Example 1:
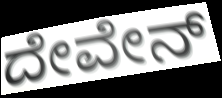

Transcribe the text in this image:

ದೇವೇನ್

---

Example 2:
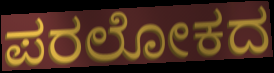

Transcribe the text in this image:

ಪರಲೋಕದ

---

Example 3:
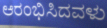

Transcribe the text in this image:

ಆರಂಭಿಸಿದವಳು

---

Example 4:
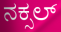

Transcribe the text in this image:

ನಕ್ಸಲ್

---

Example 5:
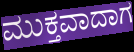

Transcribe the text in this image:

ಮುಕ್ತವಾದಾಗ